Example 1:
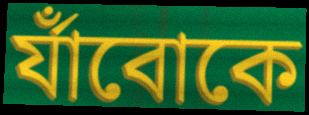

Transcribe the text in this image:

র্যাঁবোকে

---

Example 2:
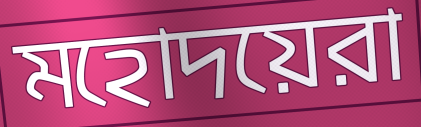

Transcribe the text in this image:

মহোদয়েরা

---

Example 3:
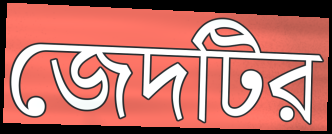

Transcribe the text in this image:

জেদটির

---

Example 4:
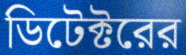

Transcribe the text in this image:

ডিটেক্টরের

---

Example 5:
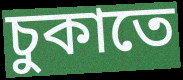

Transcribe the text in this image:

চুকাতে